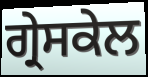
ਗ੍ਰੇਸਕੇਲ